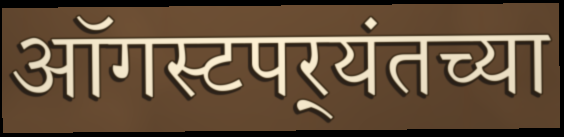
ऑगस्टपर्यंतच्या